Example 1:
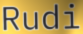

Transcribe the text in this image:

Rudi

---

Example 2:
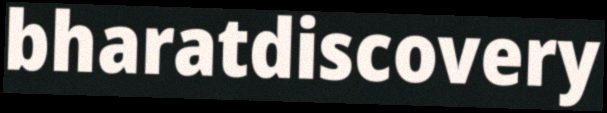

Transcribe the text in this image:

bharatdiscovery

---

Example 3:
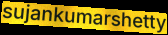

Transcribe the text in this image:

sujankumarshetty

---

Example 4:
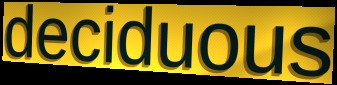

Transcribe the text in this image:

deciduous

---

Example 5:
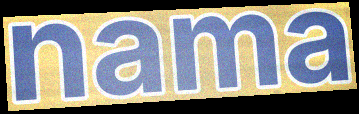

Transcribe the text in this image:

nama